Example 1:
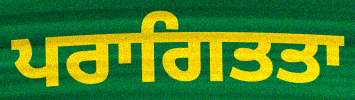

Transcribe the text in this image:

ਪਰਾਗਿਤਤਾ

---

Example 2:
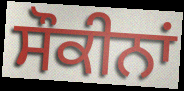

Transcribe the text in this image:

ਸੌਕੀਨਾਂ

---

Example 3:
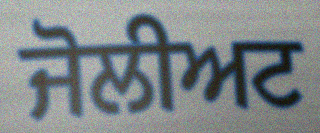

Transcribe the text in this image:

ਜੋਲੀਅਟ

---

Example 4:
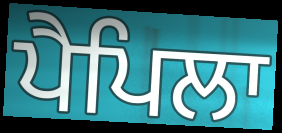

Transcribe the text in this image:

ਪੈਪਿਲਾ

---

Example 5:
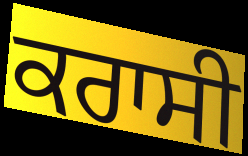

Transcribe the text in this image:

ਕਰਾਸੀ